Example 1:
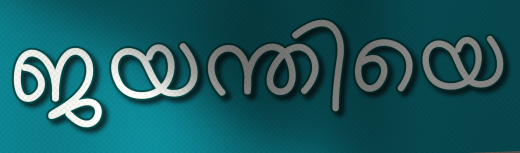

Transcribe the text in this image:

ജയന്തിയെ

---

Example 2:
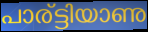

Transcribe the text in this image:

പാര്ട്ടിയാണു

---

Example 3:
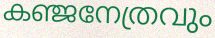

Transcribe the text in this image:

കഞ്ജനേത്രവും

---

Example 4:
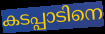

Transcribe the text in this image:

കടപ്പാടിനെ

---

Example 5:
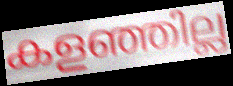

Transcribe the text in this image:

കളഞ്ഞില്ല